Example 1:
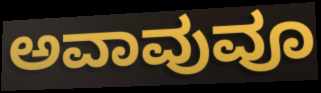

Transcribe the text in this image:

ಅವಾವುವೂ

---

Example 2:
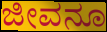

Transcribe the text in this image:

ಜೀವನೂ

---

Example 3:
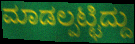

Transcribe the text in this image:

ಮಾಡಲ್ಪಟ್ಟಿದ್ದು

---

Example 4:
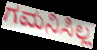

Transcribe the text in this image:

ಗಮನಿಸಿಲ್ಲ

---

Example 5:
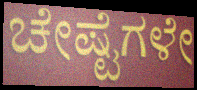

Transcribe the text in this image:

ಚೇಷ್ಟೆಗಳೇ